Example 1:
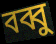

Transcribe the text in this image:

বব্বু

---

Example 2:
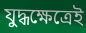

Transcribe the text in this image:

যুদ্ধক্ষেত্রেই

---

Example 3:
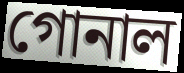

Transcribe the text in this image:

গোনাল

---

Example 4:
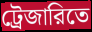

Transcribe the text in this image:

ট্রেজারিতে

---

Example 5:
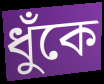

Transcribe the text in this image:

ধুঁকে